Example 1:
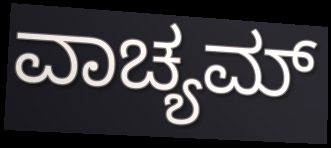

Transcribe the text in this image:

ವಾಚ್ಯಮ್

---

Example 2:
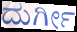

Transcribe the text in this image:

ದುರ್ಗೀ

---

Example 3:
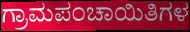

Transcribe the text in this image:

ಗ್ರಾಮಪಂಚಾಯಿತಿಗಳ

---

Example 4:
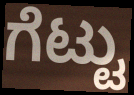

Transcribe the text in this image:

ಗೆಟ್ಟು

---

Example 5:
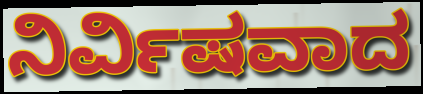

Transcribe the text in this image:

ನಿರ್ವಿಷವಾದ